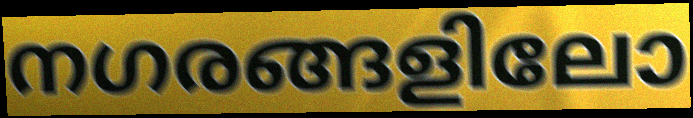
നഗരങ്ങളിലോ